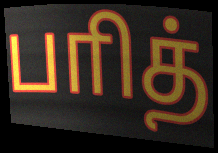
பரித்